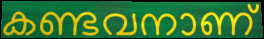
കണ്ടവനാണ്